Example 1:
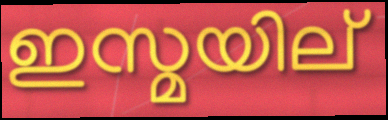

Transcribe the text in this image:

ഇസ്മയില്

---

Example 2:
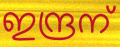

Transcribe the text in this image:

ഇന്ദ്രന്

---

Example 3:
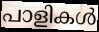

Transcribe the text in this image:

പാളികൾ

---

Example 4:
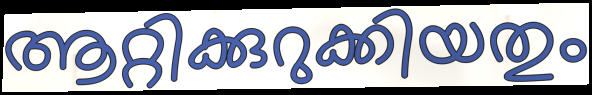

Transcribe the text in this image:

ആറ്റിക്കുറുക്കിയതും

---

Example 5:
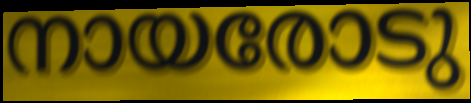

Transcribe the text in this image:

നായരോടു